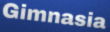
Gimnasia